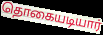
தொகையடியார்